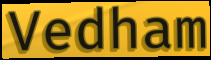
Vedham